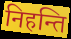
निहन्ति